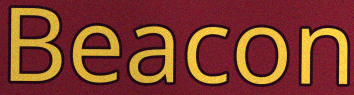
Beacon